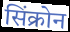
सिंक्रोन